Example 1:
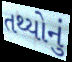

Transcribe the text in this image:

તથ્યોનું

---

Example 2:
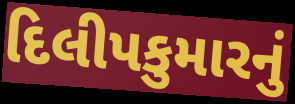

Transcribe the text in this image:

દિલીપકુમારનું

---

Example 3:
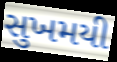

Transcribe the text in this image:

સુખમયી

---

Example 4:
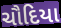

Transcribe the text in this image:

ચૌદિયા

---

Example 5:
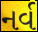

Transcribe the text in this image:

નર્વ